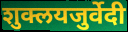
शुक्लयजुर्वेदी